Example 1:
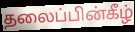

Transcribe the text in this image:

தலைப்பின்கீழ்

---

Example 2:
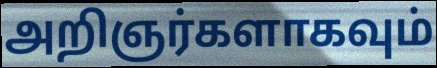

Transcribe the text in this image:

அறிஞர்களாகவும்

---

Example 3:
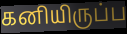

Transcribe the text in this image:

கனியிருப்ப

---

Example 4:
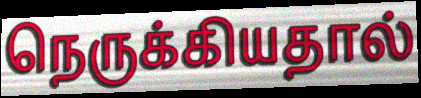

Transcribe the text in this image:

நெருக்கியதால்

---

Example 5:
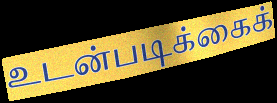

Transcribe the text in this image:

உடன்படிக்கைக்